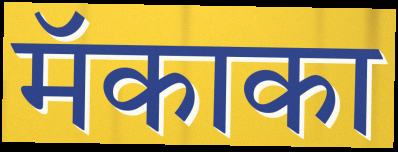
मॅकाका